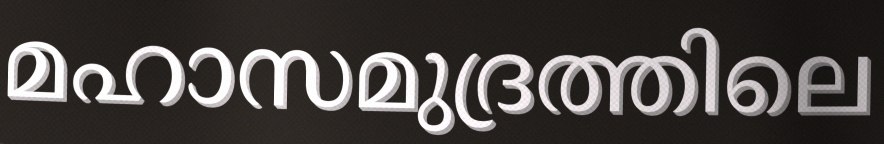
മഹാസമുദ്രത്തിലെ